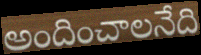
అందించాలనేది